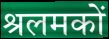
श्रलमकों